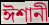
ঈশানী